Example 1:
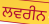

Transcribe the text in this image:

ਲਵਰੀਨ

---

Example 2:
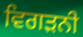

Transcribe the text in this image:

ਵਿਗੜਨੀ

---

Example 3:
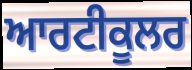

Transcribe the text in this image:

ਆਰਟੀਕੂਲਰ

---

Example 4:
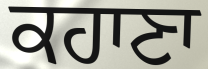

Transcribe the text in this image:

ਕਹਾਣਾ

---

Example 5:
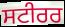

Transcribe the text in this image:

ਸਟੀਰਰ